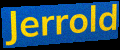
Jerrold